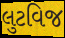
લુટવિજ